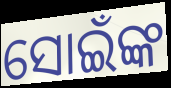
ସୋଇଁଙ୍କ